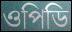
ওপিডি